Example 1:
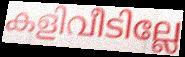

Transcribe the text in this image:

കളിവീടില്ലേ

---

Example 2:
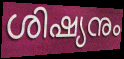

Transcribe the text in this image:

ശിഷ്യനും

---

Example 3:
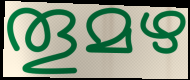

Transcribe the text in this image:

തൂമഴ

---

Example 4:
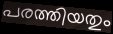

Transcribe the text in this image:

പരത്തിയതും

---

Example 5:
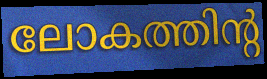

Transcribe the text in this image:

ലോകത്തിന്റ